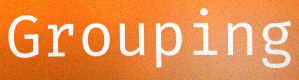
Grouping